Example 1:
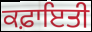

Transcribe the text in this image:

ਕਫ਼ਾਇਤੀ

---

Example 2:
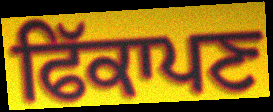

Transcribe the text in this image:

ਫਿੱਕਾਪਣ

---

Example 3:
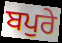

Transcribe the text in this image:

ਬਪੁਰੇ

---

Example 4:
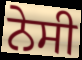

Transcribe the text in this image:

ਨੇਸੀ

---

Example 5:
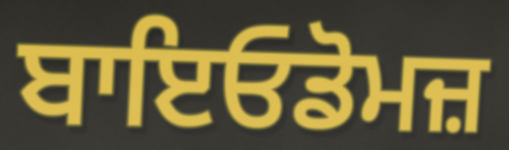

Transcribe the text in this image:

ਬਾਇਓਡੋਮਜ਼